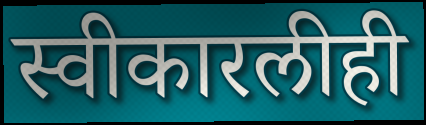
स्वीकारलीही